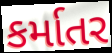
કર્માતર